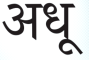
अधू